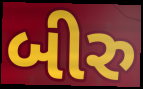
બીરુ